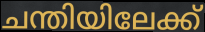
ചന്തിയിലേക്ക്